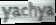
yachya